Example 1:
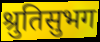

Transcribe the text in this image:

श्रुतिसुभग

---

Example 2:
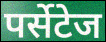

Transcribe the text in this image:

पर्सेटेज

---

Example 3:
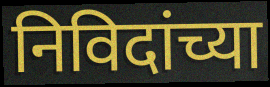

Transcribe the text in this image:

निविदांच्या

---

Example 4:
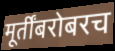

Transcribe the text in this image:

मूर्तींबरोबरच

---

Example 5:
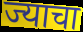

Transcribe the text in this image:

ज्याचा